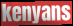
kenyans